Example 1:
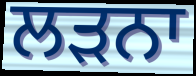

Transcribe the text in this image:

ਲੜਨਾ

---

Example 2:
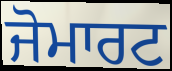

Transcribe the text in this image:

ਜੋਮਾਰਟ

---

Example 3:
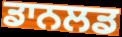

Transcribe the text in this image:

ਡਾਨਲਡ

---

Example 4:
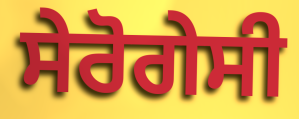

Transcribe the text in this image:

ਸੇਰੋਗੇਸੀ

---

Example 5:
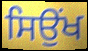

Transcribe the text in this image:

ਸਿਉਂਖ